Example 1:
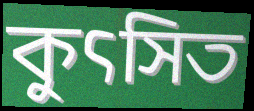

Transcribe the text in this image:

কুৎসিত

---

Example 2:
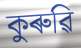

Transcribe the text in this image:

কুৰুৱি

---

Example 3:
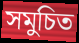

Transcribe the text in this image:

সমুচিত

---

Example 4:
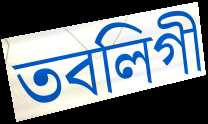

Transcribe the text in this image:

তবলিগী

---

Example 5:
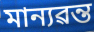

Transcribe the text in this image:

মান্যৱন্ত